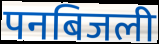
पनबिजली